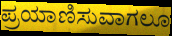
ಪ್ರಯಾಣಿಸುವಾಗಲೂ